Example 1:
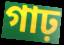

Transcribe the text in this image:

গাঢ়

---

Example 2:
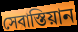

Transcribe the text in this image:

সেবাস্তিয়ান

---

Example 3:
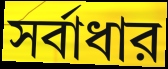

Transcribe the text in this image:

সর্বাধার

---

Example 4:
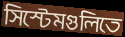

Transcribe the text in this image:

সিস্টেমগুলিতে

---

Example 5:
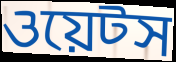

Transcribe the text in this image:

ওয়েট্স